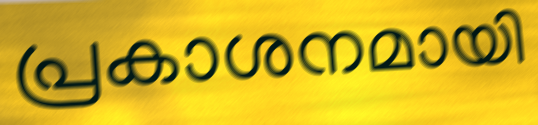
പ്രകാശനമായി